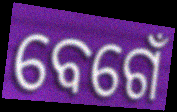
ବେଗେଁ